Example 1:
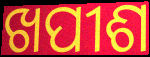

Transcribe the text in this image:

ଖପୀଶ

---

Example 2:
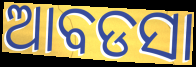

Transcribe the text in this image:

ଆବଡସା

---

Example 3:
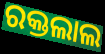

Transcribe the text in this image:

ରକ୍ତଲାଲ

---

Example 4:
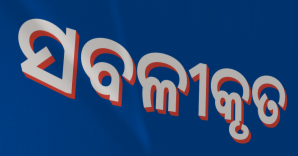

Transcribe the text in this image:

ସବଳୀକୃତ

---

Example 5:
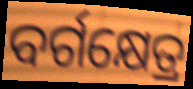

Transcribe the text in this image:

ବର୍ଗକ୍ଷେତ୍ର